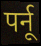
पर्नू